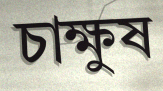
চাক্ষুষ